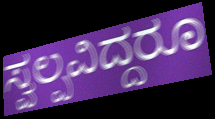
ಸ್ವಲ್ಪವಿದ್ದರೂ